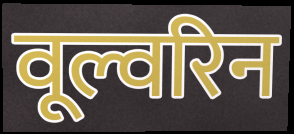
वूल्वरिन